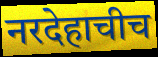
नरदेहाचीच